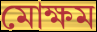
মোক্ষম